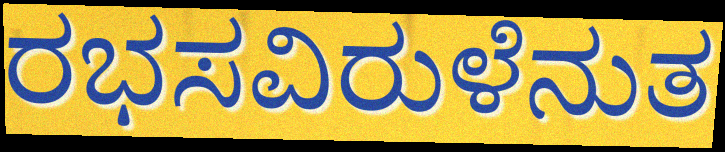
ರಭಸವಿರುಳೆನುತ